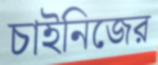
চাইনিজের